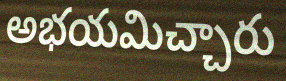
అభయమిచ్చారు